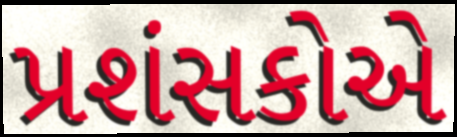
પ્રશંસકોએ